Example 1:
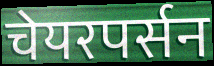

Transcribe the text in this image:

चेयरपर्सन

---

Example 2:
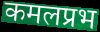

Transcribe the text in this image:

कमलप्रभ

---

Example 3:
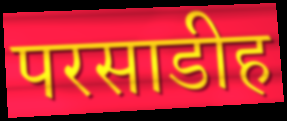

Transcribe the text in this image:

परसाडीह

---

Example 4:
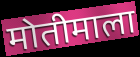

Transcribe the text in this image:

मोतीमाला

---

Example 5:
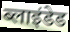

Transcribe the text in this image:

ब्लाइंडेड